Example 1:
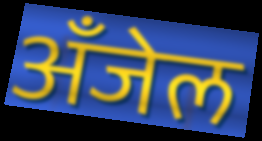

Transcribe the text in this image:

अँजेल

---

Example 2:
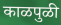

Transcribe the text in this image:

काळपुळी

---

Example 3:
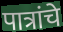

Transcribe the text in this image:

पात्रांचे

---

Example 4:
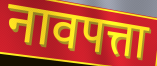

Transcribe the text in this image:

नावपत्ता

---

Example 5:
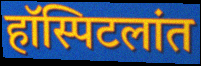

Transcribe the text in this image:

हॉस्पिटलांत